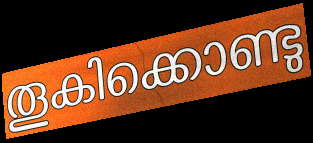
തൂകിക്കൊണ്ടു